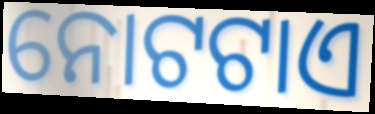
ନୋଟଟାଏ